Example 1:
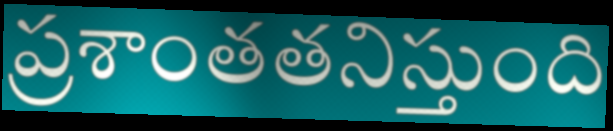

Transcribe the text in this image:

ప్రశాంతతనిస్తుంది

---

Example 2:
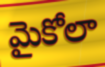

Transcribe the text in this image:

మైకోలా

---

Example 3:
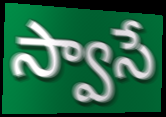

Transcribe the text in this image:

స్వాసే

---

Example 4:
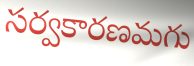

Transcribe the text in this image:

సర్వకారణమగు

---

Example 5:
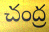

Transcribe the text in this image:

చంద్ర